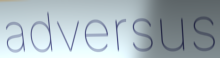
adversus